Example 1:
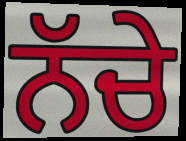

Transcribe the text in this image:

ਨੱਚੇ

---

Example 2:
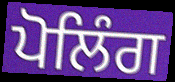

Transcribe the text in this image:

ਪੋਲਿੰਗ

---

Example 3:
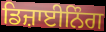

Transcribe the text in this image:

ਡਿਜ਼ਾਈਨਿੰਗ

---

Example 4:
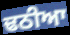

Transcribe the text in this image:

ਢਠੀਆ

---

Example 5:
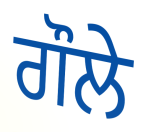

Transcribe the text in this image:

ਗੌਲੇ